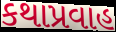
કથાપ્રવાહ